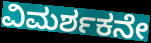
ವಿಮರ್ಶಕನೇ